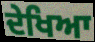
ਦੇਖਿਆ